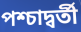
পশ্চাদ্বর্তী